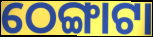
ଠେଙ୍ଗାଟା